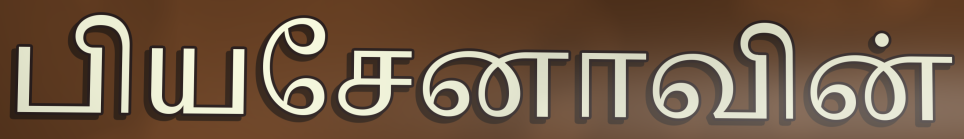
பியசேனாவின்